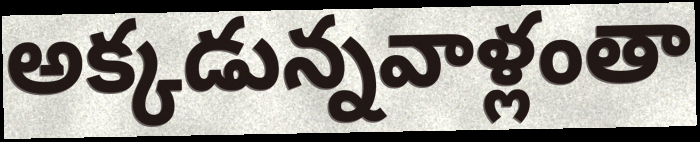
అక్కడున్నవాళ్లంతా